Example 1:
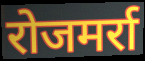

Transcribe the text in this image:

रोजमर्रा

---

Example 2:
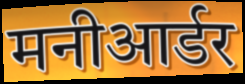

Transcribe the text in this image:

मनीआर्डर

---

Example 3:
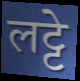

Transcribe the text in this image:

लट्टे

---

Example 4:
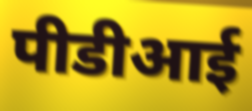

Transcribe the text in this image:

पीडीआई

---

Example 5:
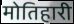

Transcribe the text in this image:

मोतिहारी